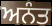
ਅਨੰਤ